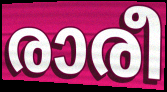
രാരീ